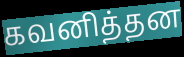
கவனித்தன